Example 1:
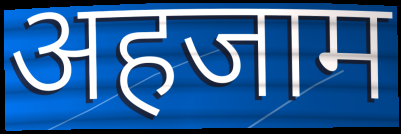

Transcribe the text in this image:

अहजाम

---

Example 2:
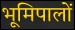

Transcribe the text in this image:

भूमिपालों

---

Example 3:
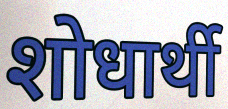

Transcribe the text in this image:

शोधार्थी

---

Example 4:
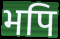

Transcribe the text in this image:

भपि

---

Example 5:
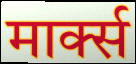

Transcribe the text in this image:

मार्क्‍स